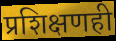
प्रशिक्षणही